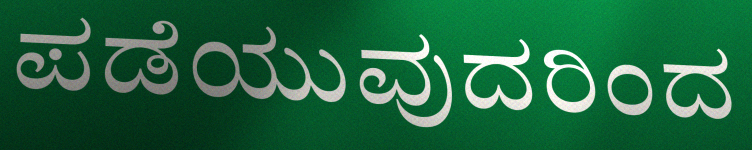
ಪಡೆಯುವುದರಿಂದ